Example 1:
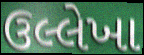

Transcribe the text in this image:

ઉલ્લેખા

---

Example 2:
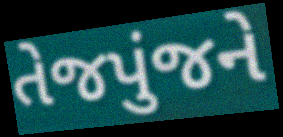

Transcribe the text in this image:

તેજપુંજને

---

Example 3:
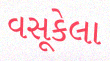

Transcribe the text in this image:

વસૂકેલા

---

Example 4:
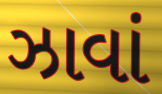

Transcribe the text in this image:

ઝાવાં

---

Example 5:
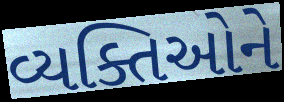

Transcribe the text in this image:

વ્યક્તિઓને